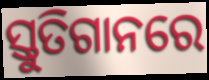
ସ୍ତୁତିଗାନରେ